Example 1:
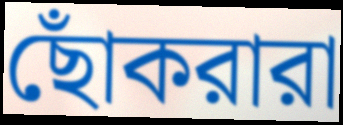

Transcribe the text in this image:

ছোঁকরারা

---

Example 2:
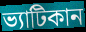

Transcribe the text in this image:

ভ্যাটিকান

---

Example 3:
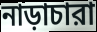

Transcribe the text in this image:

নাড়াচারা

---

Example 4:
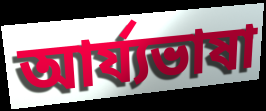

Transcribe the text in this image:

আর্য্যভাষা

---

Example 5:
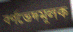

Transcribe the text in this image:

বর্ণভেদমূলক